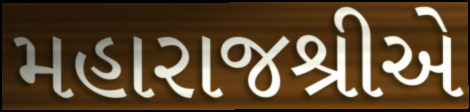
મહારાજશ્રીએ